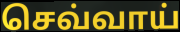
செவ்வாய்